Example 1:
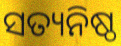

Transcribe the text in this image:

ସତ୍ୟନିଷ୍ଠ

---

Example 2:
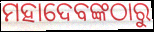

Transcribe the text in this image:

ମହାଦେବଙ୍କଠାରୁ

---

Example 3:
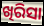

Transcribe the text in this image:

ଖିରିସା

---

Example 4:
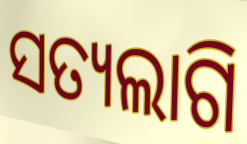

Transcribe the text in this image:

ସତ୍ୟଲାଗି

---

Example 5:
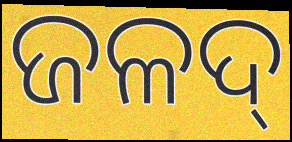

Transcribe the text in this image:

ଜଳଦ୍